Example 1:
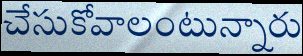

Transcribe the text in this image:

చేసుకోవాలంటున్నారు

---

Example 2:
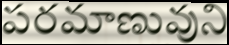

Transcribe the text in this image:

పరమాణువుని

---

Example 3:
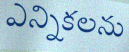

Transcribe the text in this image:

ఎన్నికలను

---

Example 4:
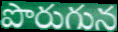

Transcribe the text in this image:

పొరుగున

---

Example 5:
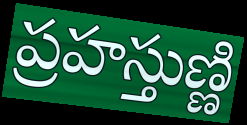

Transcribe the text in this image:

ప్రహస్తుణ్ణి